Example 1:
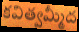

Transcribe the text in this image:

కవిత్వమ్మీద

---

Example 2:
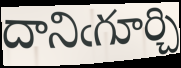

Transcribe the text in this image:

దానిఁగూర్చి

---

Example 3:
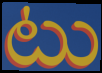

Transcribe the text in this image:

టు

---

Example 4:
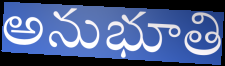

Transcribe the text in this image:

అనుభూతి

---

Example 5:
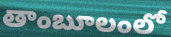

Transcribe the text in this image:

తాంబూలంలో